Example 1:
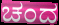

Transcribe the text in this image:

ಚಂದ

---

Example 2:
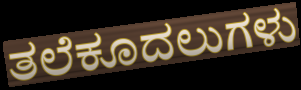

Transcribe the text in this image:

ತಲೆಕೂದಲುಗಳು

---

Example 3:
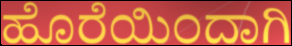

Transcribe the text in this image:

ಹೊರೆಯಿಂದಾಗಿ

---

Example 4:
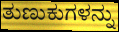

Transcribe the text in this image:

ತುಣುಕುಗಳನ್ನು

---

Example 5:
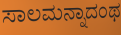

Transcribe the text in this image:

ಸಾಲಮನ್ನಾದಂಥ